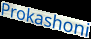
Prokashoni